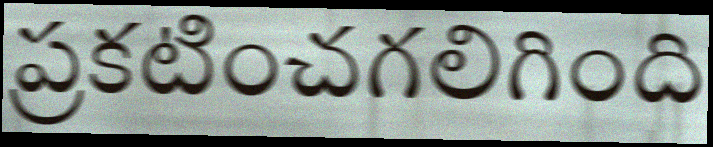
ప్రకటించగలిగింది